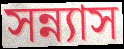
সন্ন্যাস